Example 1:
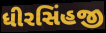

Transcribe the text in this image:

ધીરસિંહજી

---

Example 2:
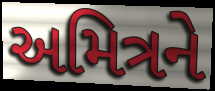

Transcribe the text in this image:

અમિત્રને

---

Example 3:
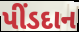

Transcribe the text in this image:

પીંડદાન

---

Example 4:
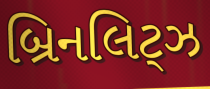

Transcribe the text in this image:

બ્રિનલિટ્ઝ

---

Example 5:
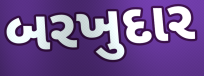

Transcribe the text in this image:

બરખુદાર